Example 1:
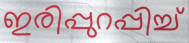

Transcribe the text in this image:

ഇരിപ്പുറപ്പിച്ച്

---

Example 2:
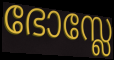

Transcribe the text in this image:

ഭോസ്ലേ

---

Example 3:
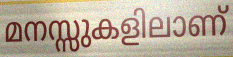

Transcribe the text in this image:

മനസ്സുകളിലാണ്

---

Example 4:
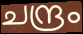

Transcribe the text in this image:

ചന്ദ്രം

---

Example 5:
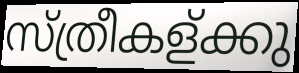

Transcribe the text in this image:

സ്ത്രീകള്ക്കു